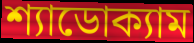
শ্যাডোক্যাম